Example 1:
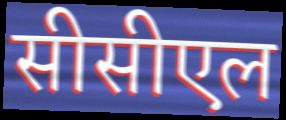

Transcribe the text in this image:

सीसीएल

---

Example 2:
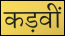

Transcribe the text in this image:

कड़वीं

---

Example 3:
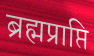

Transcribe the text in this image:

ब्रह्मप्राप्ति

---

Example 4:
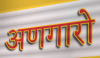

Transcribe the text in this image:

अणगारो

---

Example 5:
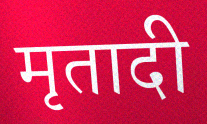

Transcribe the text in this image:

मृतादी